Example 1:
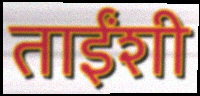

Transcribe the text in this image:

ताईंशी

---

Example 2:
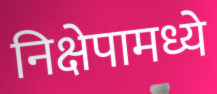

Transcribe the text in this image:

निक्षेपामध्ये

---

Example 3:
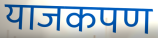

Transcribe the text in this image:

याजकपण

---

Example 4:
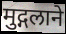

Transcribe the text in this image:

मुद्गलाने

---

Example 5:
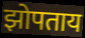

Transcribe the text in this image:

झोपताय